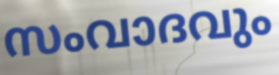
സംവാദവും